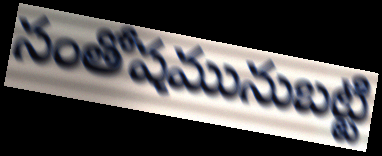
సంతోషమునుబట్టి